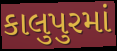
કાલુપુરમાં